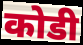
कोडी